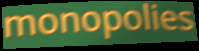
monopolies